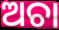
ଅଚା